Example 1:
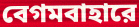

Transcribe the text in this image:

বেগমবাহারে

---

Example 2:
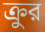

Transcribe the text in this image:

ক্রুর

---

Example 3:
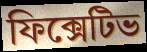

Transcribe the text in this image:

ফিক্সেটিভ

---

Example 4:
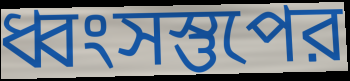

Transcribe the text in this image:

ধ্বংসস্তুপের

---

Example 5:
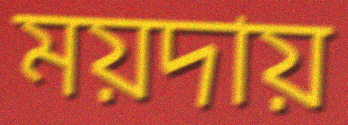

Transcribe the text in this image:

ময়দায়